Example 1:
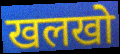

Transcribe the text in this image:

खलखो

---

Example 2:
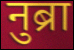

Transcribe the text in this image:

नुब्रा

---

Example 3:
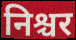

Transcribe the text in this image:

निश्चर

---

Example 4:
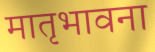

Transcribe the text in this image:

मातृभावना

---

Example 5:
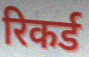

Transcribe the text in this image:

रिकर्ड